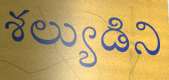
శల్యుడిని